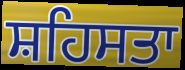
ਸ਼ਹਿਸਤਾ